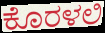
ಕೊರಳಲಿ